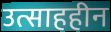
उत्साहहीन